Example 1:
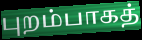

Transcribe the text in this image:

புறம்பாகத்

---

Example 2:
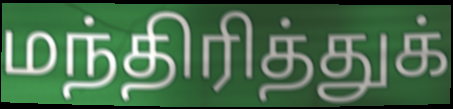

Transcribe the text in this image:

மந்திரித்துக்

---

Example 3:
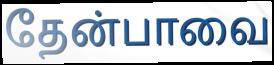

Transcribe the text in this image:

தேன்பாவை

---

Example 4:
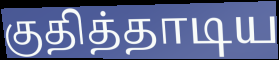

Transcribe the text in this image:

குதித்தாடிய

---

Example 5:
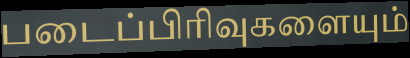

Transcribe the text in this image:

படைப்பிரிவுகளையும்